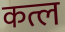
कत्ल